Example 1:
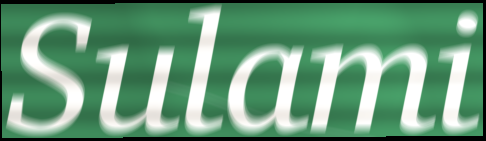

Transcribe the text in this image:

Sulami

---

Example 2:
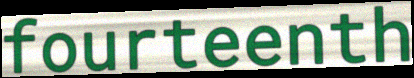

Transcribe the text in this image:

fourteenth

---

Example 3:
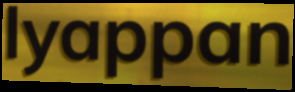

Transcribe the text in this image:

Iyappan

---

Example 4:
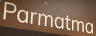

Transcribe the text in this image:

Parmatma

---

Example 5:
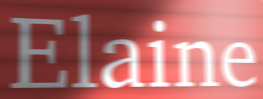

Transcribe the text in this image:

Elaine